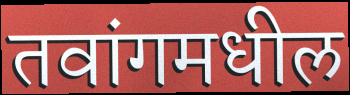
तवांगमधील